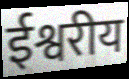
ईश्वरीय